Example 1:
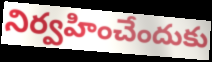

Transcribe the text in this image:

నిర్వహించేందుకు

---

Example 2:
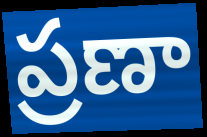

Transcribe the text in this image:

ప్రణా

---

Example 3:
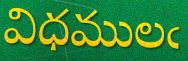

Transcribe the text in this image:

విధములఁ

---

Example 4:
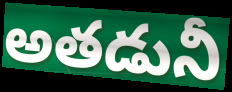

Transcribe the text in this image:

అతడునీ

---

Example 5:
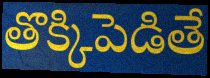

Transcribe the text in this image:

తొక్కిపెడితే